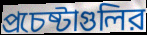
প্রচেষ্টাগুলির